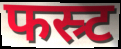
फस्र्ट